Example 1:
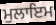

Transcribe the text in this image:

ਮੁਲਾਇਮ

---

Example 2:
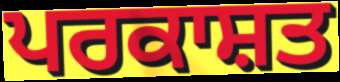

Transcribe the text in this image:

ਪਰਕਾਸ਼ਤ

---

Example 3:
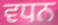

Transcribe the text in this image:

ਵਧਨ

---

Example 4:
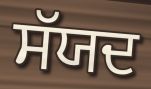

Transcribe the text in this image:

ਸੱਯਦ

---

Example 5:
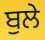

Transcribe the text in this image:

ਬੁਲੇ